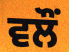
ਵਲੌੰ